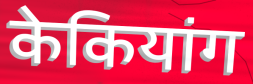
केकियांग